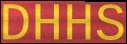
DHHS